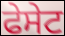
ਫੇਸੇਟ